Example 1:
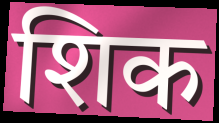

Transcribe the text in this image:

शिक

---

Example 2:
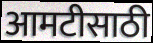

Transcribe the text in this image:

आमटीसाठी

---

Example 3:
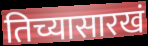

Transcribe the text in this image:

तिच्यासारखं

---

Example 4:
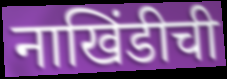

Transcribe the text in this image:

नाखिंडीची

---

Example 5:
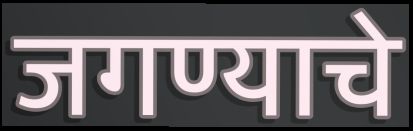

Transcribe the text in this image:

जगण्याचे